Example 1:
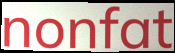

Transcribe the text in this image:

nonfat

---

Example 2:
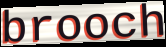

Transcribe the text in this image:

brooch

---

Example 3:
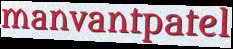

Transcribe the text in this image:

manvantpatel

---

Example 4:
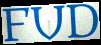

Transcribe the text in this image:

FUD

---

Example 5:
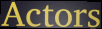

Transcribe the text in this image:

Actors